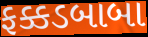
ફક્કડબાબા